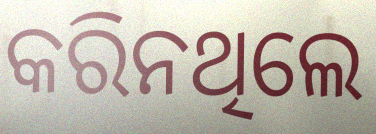
କରିନଥିଲେ